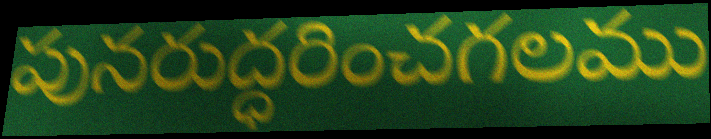
పునరుద్ధరించగలము